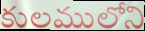
కులములోని